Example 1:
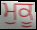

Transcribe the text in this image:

ਮੁਕੂ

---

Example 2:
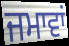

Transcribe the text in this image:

ਜਮਾਵਾਂ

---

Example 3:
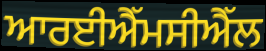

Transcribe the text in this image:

ਆਰਈਐੱਮਸੀਐੱਲ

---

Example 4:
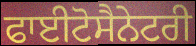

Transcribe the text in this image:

ਫਾਈਟੋਸੈਨੇਟਰੀ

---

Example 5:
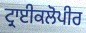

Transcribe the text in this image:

ਟ੍ਰਾਈਕਲੋਪੀਰ